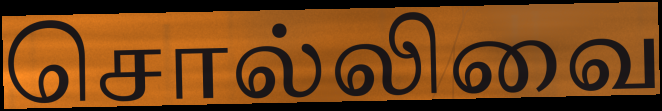
சொல்லிவை